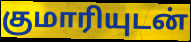
குமாரியுடன்